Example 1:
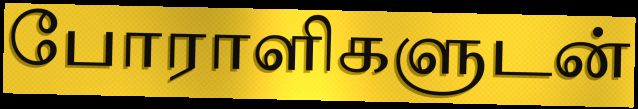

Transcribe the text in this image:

போராளிகளுடன்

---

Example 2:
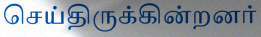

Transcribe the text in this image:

செய்திருக்கின்றனர்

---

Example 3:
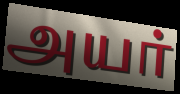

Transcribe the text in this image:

அயர்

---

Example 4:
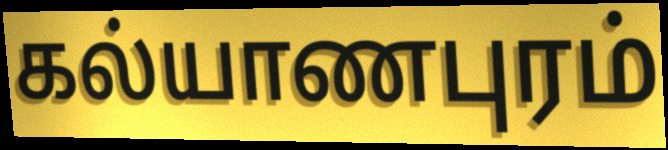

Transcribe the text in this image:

கல்யாணபுரம்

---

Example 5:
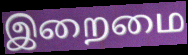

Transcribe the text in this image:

இறைமை